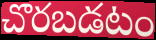
చొరబడటం